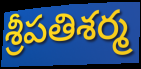
శ్రీపతిశర్మ